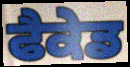
ਫੈਕੇਡ